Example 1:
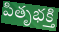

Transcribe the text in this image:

పితృభక్తి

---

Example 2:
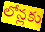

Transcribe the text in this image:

లోన్లకు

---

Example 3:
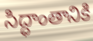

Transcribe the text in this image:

సిద్ధాంతానికి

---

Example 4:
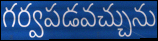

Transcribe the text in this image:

గర్వపడవచ్చును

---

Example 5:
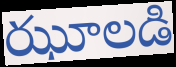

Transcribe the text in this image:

ఝూలడి